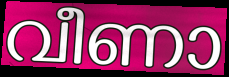
വീണാ